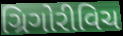
ગ્રિગોરીવિચ